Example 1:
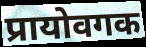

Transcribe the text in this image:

प्रायोवगक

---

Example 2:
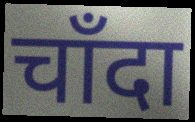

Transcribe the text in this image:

चाँदा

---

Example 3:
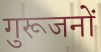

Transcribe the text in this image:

गुरूजनों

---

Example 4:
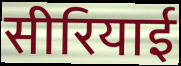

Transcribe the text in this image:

सीरियाई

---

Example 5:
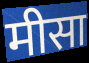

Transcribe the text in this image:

मीसा